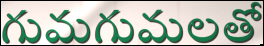
గుమగుమలతో